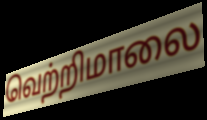
வெற்றிமாலை